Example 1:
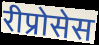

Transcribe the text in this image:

रीप्रोसेस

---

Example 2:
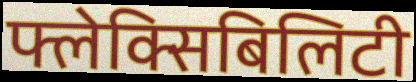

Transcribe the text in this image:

फ्लेक्सिबिलिटी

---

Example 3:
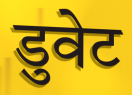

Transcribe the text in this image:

डुवेट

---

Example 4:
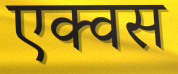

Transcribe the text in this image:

एक्वस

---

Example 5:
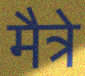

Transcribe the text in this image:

मैत्रे